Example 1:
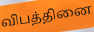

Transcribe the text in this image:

விபத்தினை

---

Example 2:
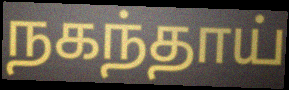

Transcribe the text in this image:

நகந்தாய்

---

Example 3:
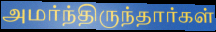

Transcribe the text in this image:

அமர்ந்திருந்தார்கள்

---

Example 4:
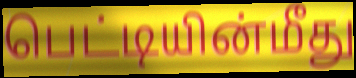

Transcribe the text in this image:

பெட்டியின்மீது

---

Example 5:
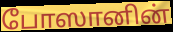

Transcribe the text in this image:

போஸானின்